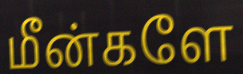
மீன்களே